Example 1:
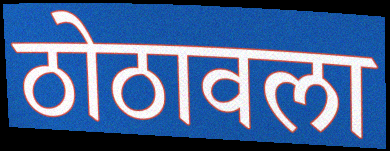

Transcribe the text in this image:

ठोठावला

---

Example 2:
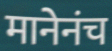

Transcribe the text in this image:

मानेनंच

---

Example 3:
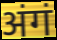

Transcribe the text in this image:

अंगं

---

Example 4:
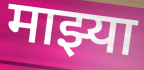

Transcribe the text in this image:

माझ्या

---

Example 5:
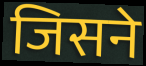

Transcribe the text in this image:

जिसने